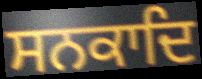
ਸਨਕਾਦਿ